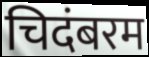
चिदंबरम